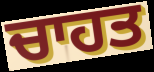
ਚਾਹਤ